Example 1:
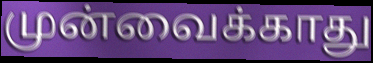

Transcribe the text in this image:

முன்வைக்காது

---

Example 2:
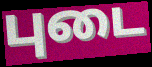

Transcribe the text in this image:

புடை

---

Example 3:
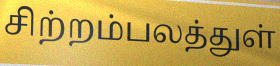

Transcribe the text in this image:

சிற்றம்பலத்துள்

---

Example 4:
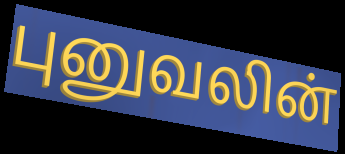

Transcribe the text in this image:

புனுவலின்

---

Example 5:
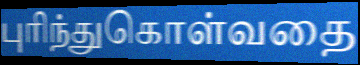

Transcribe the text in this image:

புரிந்துகொள்வதை